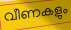
വീണകളും